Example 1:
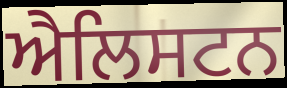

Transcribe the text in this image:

ਐਲਿਸਟਨ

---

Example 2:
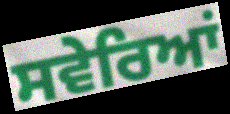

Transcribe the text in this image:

ਸਵੇਰਿਆਂ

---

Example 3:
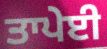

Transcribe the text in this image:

ਤਾਪੇਈ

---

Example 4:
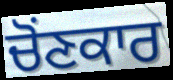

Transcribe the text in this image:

ਚੋਂਣਕਾਰ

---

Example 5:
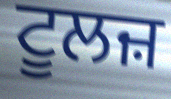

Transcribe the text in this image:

ਟੂਲਜ਼